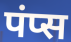
पंप्स